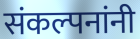
संकल्पनांनी